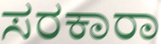
ಸರಕಾರಾ